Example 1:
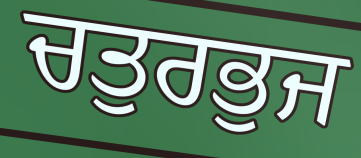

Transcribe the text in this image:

ਚਤੁਰਭੁਜ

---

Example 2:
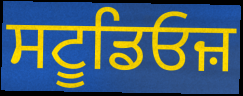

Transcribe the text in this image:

ਸਟੂਡਿਓਜ਼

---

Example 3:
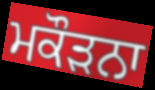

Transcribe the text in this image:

ਮਕੌੜਨਾ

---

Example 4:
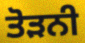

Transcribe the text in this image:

ਤੋੜਨੀ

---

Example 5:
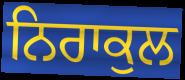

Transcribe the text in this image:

ਨਿਰਾਕੁਲ